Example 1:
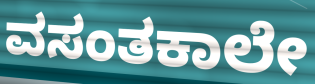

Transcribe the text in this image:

ವಸಂತಕಾಲೇ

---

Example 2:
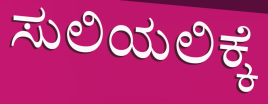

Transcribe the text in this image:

ಸುಲಿಯಲಿಕ್ಕೆ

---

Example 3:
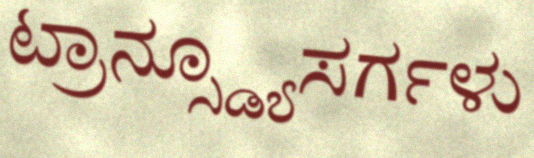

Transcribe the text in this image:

ಟ್ರಾನ್ಸ್ಡ್ಯೂಸರ್ಗಳು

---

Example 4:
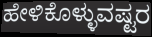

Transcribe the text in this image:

ಹೇಳಿಕೊಳ್ಳುವಷ್ಟರ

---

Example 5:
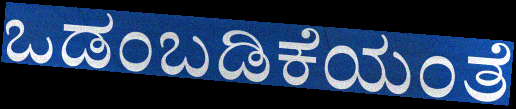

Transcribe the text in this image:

ಒಡಂಬಡಿಕೆಯಂತೆ